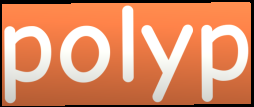
polyp